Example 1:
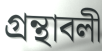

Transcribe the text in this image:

গ্রন্থাবলী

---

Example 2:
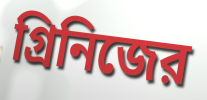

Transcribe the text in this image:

গ্রিনিজের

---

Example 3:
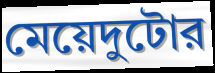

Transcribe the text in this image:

মেয়েদুটোর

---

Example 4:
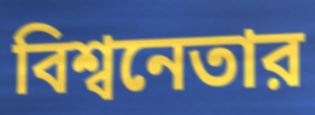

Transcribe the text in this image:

বিশ্বনেতার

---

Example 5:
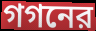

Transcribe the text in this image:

গগনের